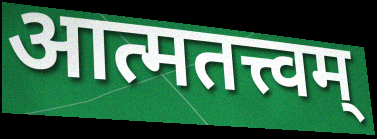
आत्मतत्त्वम्